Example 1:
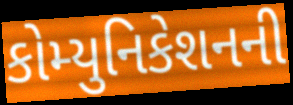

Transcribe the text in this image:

કોમ્યુનિકેશનની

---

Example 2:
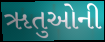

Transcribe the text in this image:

ૠતુઓની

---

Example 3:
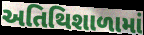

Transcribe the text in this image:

અતિથિશાળામાં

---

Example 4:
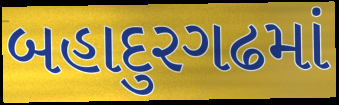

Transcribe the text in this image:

બહાદુરગઢમાં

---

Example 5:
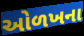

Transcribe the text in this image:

ઓળખના